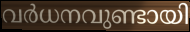
വർധനവുണ്ടായി